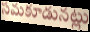
సమకూడునట్లు